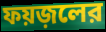
ফয়জ়লের